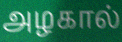
அழகால்